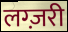
लग्ज़री